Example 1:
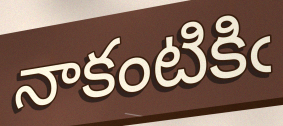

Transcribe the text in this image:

నాకంటికిఁ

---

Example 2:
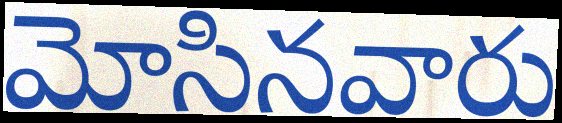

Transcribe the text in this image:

మోసినవారు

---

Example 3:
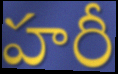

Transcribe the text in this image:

హరీ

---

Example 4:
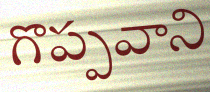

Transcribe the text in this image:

గొప్పవాని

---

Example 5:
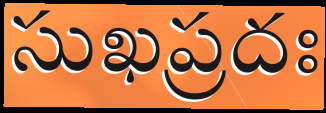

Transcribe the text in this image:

సుఖప్రదః